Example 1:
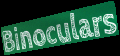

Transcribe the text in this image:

Binoculars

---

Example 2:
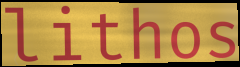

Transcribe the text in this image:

lithos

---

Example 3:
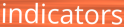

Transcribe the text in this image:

indicators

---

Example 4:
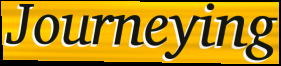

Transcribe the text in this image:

Journeying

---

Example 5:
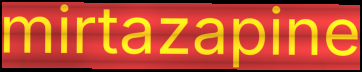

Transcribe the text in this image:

mirtazapine